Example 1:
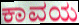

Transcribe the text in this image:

ಕಾವಯ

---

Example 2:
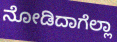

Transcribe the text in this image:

ನೋಡಿದಾಗೆಲ್ಲಾ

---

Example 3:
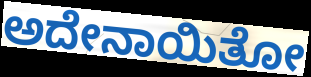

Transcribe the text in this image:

ಅದೇನಾಯಿತೋ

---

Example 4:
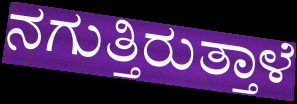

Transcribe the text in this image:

ನಗುತ್ತಿರುತ್ತಾಳೆ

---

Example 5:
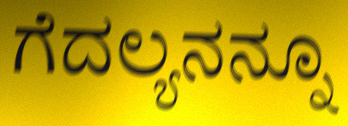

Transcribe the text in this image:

ಗೆದಲ್ಯನನ್ನೂ